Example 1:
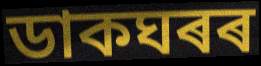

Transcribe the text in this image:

ডাকঘৰৰ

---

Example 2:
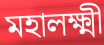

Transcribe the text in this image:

মহালক্ষ্মী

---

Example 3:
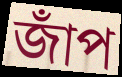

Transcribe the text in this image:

জাঁপ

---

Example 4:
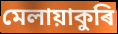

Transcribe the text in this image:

মেলায়াকুৰি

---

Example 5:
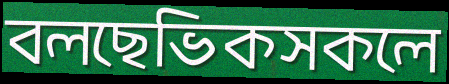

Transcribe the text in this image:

বলছেভিকসকলে